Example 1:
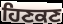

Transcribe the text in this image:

ਹਿਣਕਣ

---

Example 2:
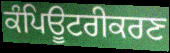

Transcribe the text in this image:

ਕੰਪਿਊਟਰੀਕਰਣ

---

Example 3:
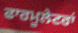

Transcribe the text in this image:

ਫਾਰਮੂਲੇਟਰਾਂ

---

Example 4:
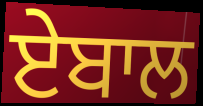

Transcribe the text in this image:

ਏਬਾਲ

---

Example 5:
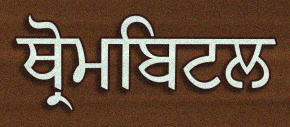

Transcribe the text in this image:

ਥ੍ਰੋਮਬਿਟਲ